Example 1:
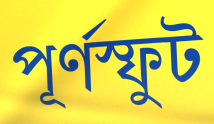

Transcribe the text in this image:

পূর্ণস্ফুট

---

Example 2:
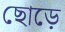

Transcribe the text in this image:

ছোড়ে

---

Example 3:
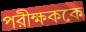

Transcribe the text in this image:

পরীক্ষককে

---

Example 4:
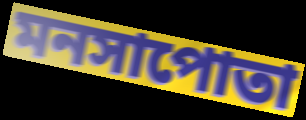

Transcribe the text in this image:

মনসাপোতা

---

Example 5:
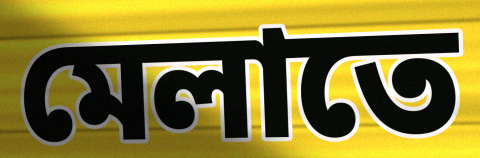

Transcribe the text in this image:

মেলাতে